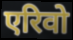
एरिवो